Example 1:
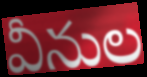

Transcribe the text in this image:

వీనుల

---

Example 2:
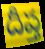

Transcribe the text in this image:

దీప్త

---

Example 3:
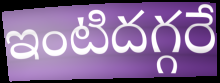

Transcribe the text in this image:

ఇంటిదగ్గరే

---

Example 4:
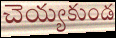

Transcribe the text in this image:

చెయ్యకుండ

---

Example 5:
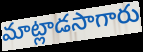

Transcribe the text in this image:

మాట్లాడసాగారు